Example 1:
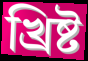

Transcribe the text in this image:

খ্রিষ্ট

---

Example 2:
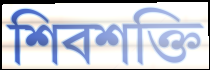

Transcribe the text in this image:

শিবশক্তি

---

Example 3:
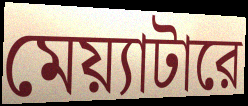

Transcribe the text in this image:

মেয়্যাটারে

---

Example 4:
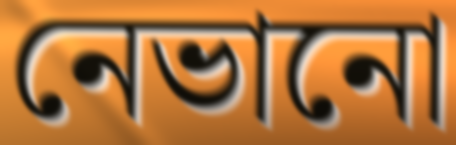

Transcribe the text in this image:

নেভানো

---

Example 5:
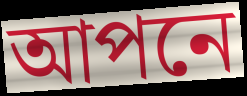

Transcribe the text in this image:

আপনে